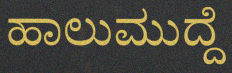
ಹಾಲುಮುದ್ದೆ